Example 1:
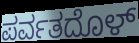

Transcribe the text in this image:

ಪರ್ವತದೊಳ್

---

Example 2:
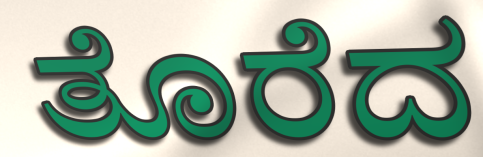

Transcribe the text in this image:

ತೊರೆದ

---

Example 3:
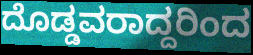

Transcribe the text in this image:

ದೊಡ್ಡವರಾದ್ದರಿಂದ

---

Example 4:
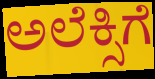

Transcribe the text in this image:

ಅಲೆಕ್ಸಿಗೆ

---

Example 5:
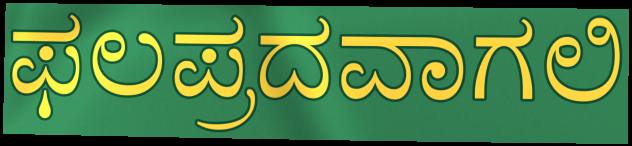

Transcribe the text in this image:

ಫಲಪ್ರದವಾಗಲಿ